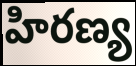
హిరణ్య